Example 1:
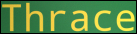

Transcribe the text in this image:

Thrace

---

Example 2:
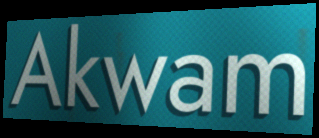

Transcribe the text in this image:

Akwam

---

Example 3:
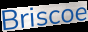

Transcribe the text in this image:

Briscoe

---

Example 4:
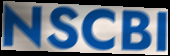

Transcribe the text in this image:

NSCBI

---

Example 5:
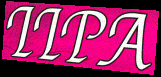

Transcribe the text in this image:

IIPA